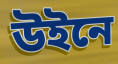
উইনে